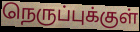
நெருப்புக்குள்